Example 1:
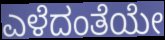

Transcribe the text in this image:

ಎಳೆದಂತೆಯೇ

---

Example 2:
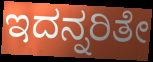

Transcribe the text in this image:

ಇದನ್ನರಿತೇ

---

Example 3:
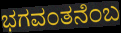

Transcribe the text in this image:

ಭಗವಂತನೆಂಬ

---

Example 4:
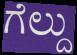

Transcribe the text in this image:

ಗೆಲ್ದು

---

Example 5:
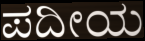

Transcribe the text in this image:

ಪದೀಯ